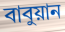
বাবুয়ান